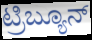
ಟ್ರಿಬ್ಯೂನ್